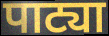
पाट्या